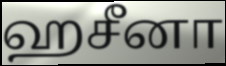
ஹசீனா